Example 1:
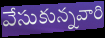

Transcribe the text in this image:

వేసుకున్నవారి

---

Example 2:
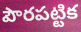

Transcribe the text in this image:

పౌరపట్టిక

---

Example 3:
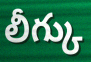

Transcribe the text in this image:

లీగ్కు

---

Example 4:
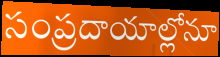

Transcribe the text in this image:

సంప్రదాయాల్లోనూ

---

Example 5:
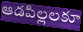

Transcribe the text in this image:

ఆడపిల్లలకూ